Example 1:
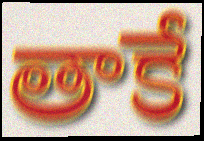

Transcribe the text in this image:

తాకే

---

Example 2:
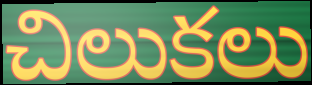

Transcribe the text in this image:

చిలుకలు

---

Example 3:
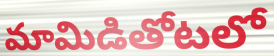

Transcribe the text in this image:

మామిడితోటలో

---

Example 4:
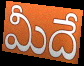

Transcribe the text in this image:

మీదే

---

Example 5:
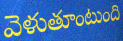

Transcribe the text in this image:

వెళుతూంటుంది